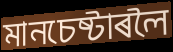
মানচেষ্টাৰলৈ